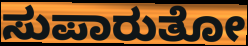
ಸುಪಾರುತೋ